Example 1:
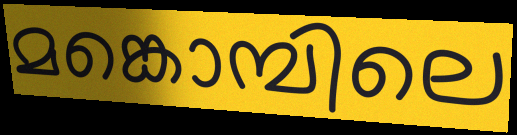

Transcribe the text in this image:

മങ്കൊമ്പിലെ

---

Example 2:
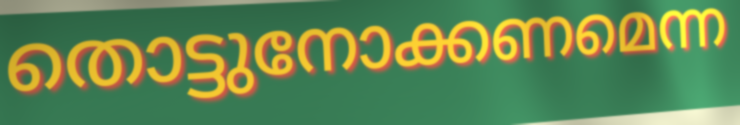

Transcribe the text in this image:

തൊട്ടുനോക്കണമെന്ന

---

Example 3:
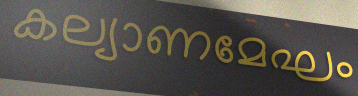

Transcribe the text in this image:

കല്യാണമേഘം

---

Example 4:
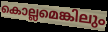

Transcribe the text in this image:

കൊല്ലമെങ്കിലും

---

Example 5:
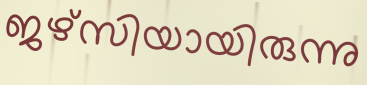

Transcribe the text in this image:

ജഴ്സിയായിരുന്നു